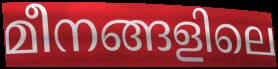
മീനങ്ങളിലെ